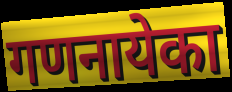
गणनायेका